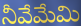
నీవేమేమి